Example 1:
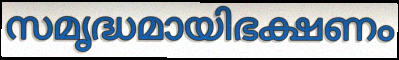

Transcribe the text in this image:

സമൃദ്ധമായിഭക്ഷണം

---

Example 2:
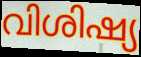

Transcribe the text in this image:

വിശിഷ്യ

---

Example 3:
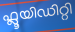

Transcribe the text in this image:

ഫ്ലൂയിഡിറ്റി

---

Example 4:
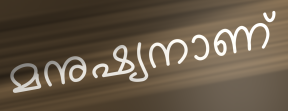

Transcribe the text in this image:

മനുഷ്യനാണ്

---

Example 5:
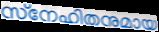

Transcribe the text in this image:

സ്‌നേഹിതനുമായ